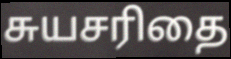
சுயசரிதை